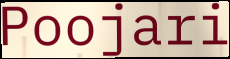
Poojari